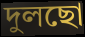
দুলছো